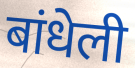
बांधेली